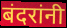
बंदरांनी